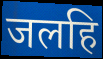
जलहि